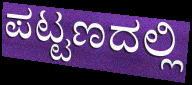
ಪಟ್ಟಣದಲ್ಲಿ